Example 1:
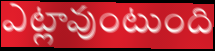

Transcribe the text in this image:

ఎట్లావుంటుంది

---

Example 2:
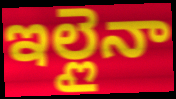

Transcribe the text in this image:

ఇల్లైనా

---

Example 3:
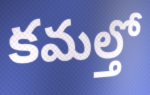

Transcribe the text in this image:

కమల్తో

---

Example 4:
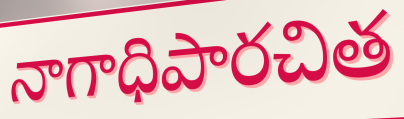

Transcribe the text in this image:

నాగాధిపారచిత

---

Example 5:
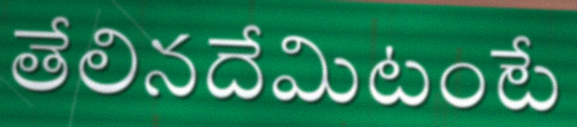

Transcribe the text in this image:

తేలినదేమిటంటే